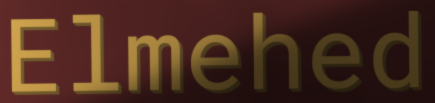
Elmehed